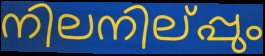
നിലനില്പ്പും